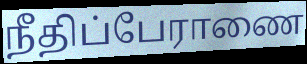
நீதிப்பேராணை